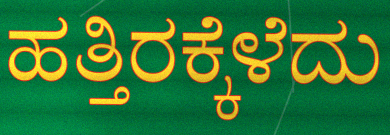
ಹತ್ತಿರಕ್ಕೆಳೆದು